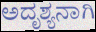
ಅದೃಶ್ಯನಾಗಿ